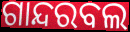
ଗାନ୍ଦରବଲ